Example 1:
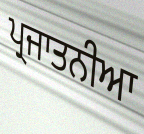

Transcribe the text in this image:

ਪ੍ਰਜਾਤਨੀਆ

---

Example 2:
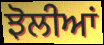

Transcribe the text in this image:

ਝੋਲੀਆਂ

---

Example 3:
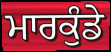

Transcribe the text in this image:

ਮਾਰਕੁੰਡੇ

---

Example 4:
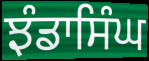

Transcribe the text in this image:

ਝੰਡਾਸਿੰਘ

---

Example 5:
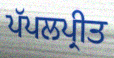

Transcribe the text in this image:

ਪੱਪਲਪ੍ਰੀਤ